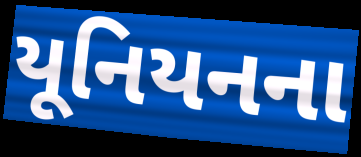
યૂનિયનના